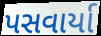
પસવાર્યા